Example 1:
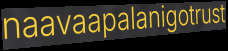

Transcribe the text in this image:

naavaapalanigotrust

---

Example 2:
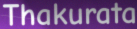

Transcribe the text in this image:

Thakurata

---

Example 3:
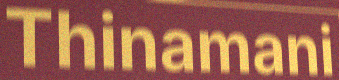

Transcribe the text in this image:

Thinamani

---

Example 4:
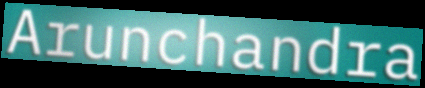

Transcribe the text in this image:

Arunchandra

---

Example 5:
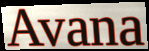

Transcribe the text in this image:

Avana